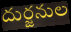
దుర్జనుల